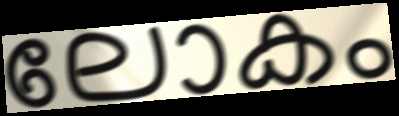
ലോകം